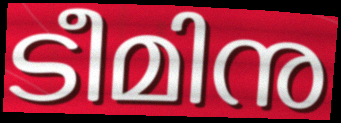
ടീമിനു